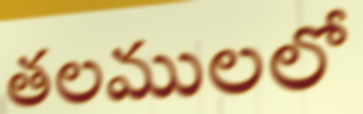
తలములలో